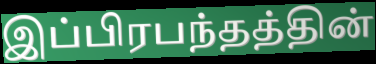
இப்பிரபந்தத்தின்